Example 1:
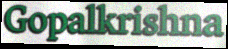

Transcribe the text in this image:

Gopalkrishna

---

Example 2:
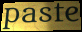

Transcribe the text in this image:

paste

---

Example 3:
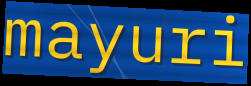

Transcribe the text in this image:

mayuri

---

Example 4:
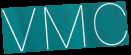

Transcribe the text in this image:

VMC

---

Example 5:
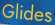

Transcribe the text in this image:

Glides